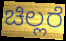
ಚಿಲ್ಲರೆ